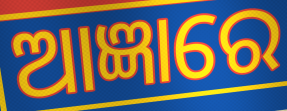
ଆଜ୍ଞାରେ